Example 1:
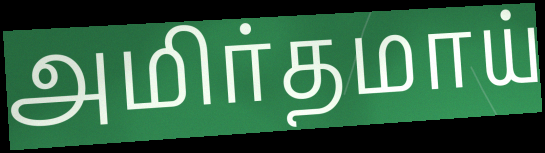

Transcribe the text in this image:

அமிர்தமாய்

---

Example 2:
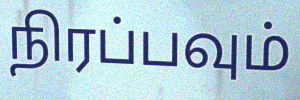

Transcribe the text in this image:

நிரப்பவும்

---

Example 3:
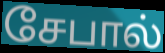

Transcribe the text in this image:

சேபால்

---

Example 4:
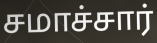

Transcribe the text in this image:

சமாச்சார்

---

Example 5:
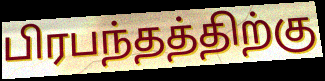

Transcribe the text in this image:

பிரபந்தத்திற்கு